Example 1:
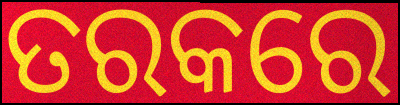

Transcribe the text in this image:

ତରକରେ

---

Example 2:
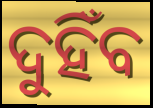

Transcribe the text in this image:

ଦୁହିଁବ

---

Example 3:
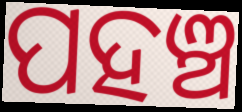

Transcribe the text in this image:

ପହଞ୍ଚ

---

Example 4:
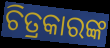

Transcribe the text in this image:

ଚିତ୍ରକାରଙ୍କ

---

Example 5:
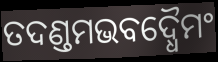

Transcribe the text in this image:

ତଦଣ୍ଡମଭବଦ୍ଧୈମଂ